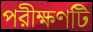
পরীক্ষণটি